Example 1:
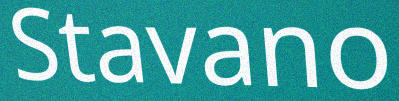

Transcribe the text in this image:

Stavano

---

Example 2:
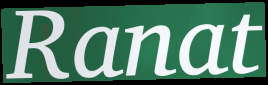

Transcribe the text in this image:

Ranat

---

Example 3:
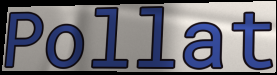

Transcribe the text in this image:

Pollat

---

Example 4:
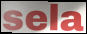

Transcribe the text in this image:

sela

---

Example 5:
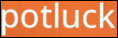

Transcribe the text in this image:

potluck